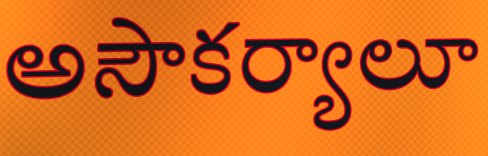
అసౌకర్యాలూ